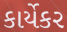
કાર્યેકર